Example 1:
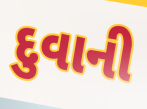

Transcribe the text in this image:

દુવાની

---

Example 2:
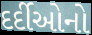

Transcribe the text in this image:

દર્દીઓનો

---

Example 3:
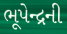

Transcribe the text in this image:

ભૂપેન્દ્રની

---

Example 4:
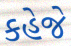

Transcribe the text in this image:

કહેજે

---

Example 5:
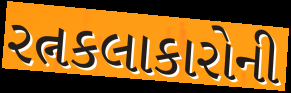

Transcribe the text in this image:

રત્નકલાકારોની